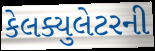
કેલક્યુલેટરની